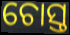
ଚୋସ୍ତ